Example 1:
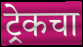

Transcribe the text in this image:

ट्रेकचा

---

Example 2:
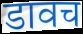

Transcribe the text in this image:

डावच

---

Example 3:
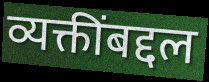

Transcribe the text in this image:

व्यक्तींबद्दल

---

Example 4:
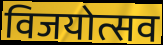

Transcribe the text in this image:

विजयोत्सव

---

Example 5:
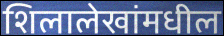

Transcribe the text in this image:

शिलालेखांमधील